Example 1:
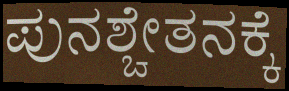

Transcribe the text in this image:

ಪುನಶ್ಚೇತನಕ್ಕೆ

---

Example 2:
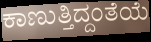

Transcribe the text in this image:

ಕಾಣುತ್ತಿದ್ದಂತೆಯೆ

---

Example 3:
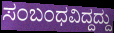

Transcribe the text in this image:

ಸಂಬಂಧವಿದ್ದದ್ದು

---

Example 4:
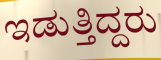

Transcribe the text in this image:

ಇಡುತ್ತಿದ್ದರು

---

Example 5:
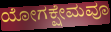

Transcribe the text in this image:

ಯೋಗಕ್ಷೇಮವೂ